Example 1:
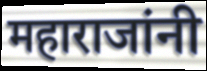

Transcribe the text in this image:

महाराजांनी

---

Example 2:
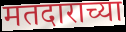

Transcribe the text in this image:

मतदाराच्या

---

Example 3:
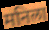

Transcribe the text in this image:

मनिला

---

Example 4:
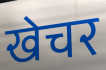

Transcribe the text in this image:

खेचर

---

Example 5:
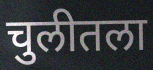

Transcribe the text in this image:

चुलीतला